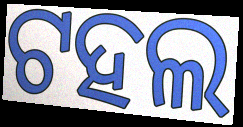
ଟହଲ